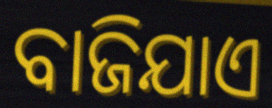
ବାଜିଯାଏ